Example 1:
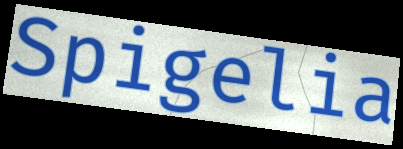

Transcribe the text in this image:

Spigelia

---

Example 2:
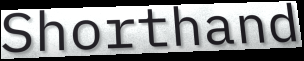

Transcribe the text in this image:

Shorthand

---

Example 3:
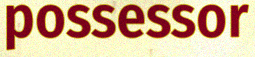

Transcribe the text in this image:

possessor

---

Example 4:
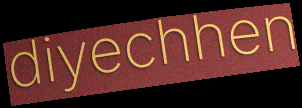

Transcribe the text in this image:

diyechhen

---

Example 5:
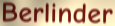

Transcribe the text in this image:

Berlinder